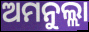
ଅମନୁଲ୍ଲା